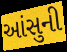
આંસુની